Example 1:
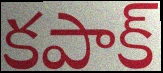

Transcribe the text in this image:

కపాక్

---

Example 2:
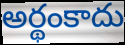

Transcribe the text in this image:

అర్థంకాదు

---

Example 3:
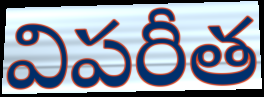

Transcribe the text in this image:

విపరీత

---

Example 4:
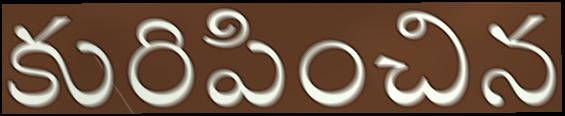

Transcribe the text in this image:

కురిపించిన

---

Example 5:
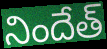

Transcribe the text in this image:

నిందేత్